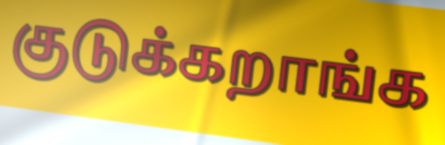
குடுக்கறாங்க